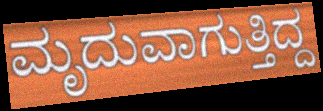
ಮೃದುವಾಗುತ್ತಿದ್ದ